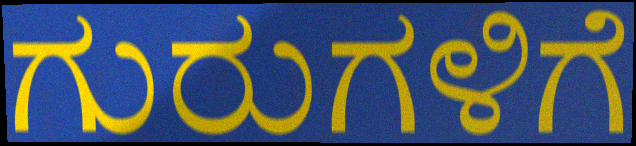
ಗುರುಗಳಿಗೆ